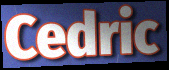
Cedric